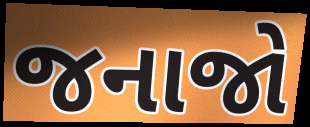
જનાજો